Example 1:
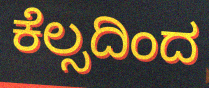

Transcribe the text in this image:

ಕೆಲ್ಸದಿಂದ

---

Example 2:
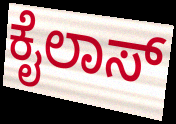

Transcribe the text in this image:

ಕೈಲಾಸ್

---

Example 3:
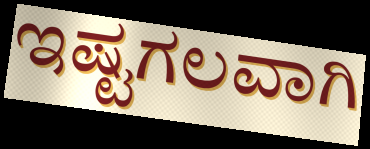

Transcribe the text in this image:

ಇಷ್ಟಗಲವಾಗಿ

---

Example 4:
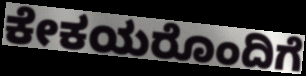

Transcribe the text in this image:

ಕೇಕಯರೊಂದಿಗೆ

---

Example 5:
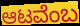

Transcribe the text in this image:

ಆಟವೆಂಬ